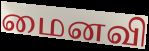
மைனவி